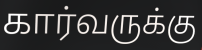
கார்வருக்கு